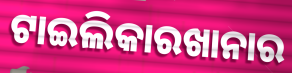
ଟାଇଲିକାରଖାନାର